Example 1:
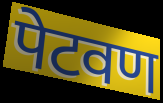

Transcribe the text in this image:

पेटवण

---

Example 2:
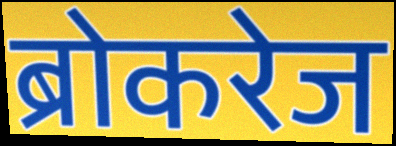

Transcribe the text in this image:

ब्रोकरेज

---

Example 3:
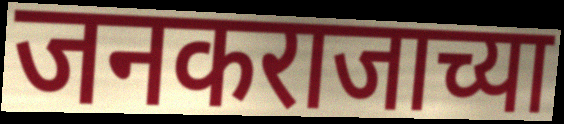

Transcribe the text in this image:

जनकराजाच्या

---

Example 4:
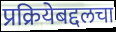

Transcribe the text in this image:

प्रक्रियेबद्दलचा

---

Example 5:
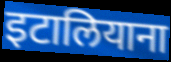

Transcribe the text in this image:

इटालियाना